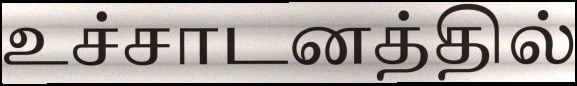
உச்சாடனத்தில்